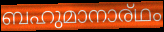
ബഹുമാനാര്ഥം